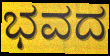
ಭವದ